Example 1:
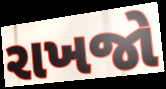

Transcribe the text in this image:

રાખજો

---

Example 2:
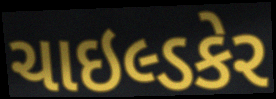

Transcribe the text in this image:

ચાઇલ્ડકેર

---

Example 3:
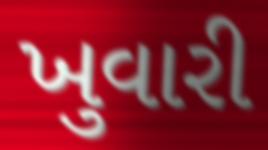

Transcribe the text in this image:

ખુવારી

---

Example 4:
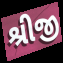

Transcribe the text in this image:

શ્રીજી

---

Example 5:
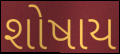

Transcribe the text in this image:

શોષાય